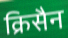
क्रिसैन